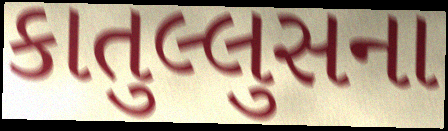
કાતુલ્લુસના